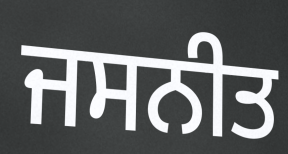
ਜਸਨੀਤ